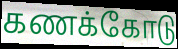
கணக்கோடு